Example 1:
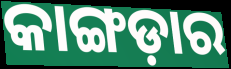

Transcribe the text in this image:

କାଙ୍ଗଡ଼ାର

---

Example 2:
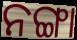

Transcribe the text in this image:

ନଙ୍ଗା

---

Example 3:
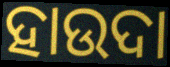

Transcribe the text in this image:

ହାଉଦା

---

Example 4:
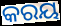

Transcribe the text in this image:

କରୟ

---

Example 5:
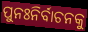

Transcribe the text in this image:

ପୁନଃନିର୍ବାଚନକୁ